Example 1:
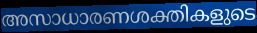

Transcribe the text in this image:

അസാധാരണശക്തികളുടെ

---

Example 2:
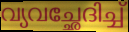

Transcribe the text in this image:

വ്യവച്ഛേദിച്ച്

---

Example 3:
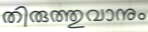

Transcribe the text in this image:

തിരുത്തുവാനും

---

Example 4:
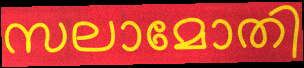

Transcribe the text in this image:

സലാമോതി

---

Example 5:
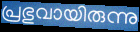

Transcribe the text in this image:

പ്രഭുവായിരുന്നു